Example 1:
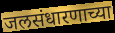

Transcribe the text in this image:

जलसंधारणाच्या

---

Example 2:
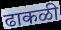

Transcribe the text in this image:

ढाकळी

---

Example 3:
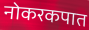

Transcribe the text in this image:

नोकरकपात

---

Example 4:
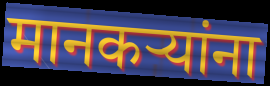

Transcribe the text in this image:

मानकऱ्यांना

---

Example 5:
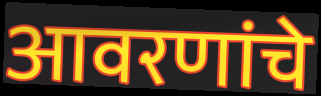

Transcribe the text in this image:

आवरणांचे